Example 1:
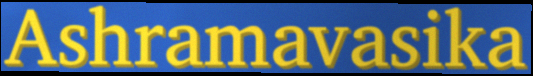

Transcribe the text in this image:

Ashramavasika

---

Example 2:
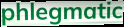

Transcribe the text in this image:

phlegmatic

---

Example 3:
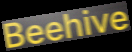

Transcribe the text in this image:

Beehive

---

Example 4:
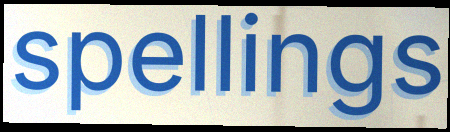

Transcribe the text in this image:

spellings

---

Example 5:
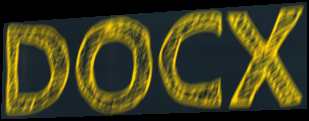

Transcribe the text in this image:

DOCX